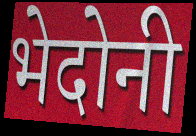
भेदोनी